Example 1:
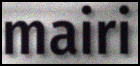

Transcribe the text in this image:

mairi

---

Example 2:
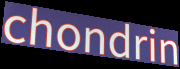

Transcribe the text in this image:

chondrin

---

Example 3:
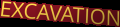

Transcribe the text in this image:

EXCAVATION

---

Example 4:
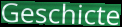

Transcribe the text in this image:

Geschicte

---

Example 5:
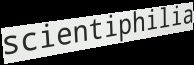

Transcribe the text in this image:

scientiphilia